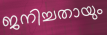
ജനിച്ചതായും